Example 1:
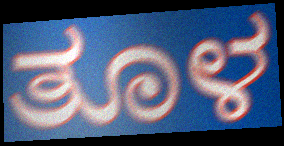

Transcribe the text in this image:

ತೂಳ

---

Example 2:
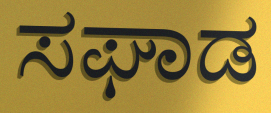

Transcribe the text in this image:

ಸಘಾಡ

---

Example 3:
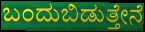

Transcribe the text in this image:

ಬಂದುಬಿಡುತ್ತೇನೆ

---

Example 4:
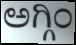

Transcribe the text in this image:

ಅಗ್ಗಿಂ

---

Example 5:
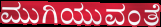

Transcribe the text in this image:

ಮುಗಿಯುವಂತೆ